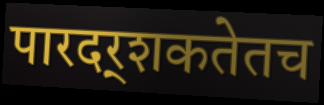
पारदर्शकतेतच